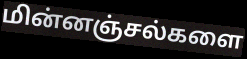
மின்னஞ்சல்களை